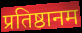
प्रतिष्ठानम